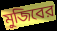
মুজিবের